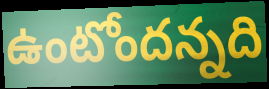
ఉంటోందన్నది